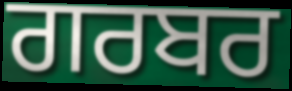
ਗਰਬਰ